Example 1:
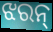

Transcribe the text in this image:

ଝରନ୍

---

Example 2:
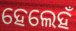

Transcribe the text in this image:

ହେଲେହଁ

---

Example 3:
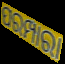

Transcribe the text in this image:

ପରମ୍ପାରା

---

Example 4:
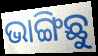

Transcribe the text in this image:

ଭାଙ୍ଗିଛୁ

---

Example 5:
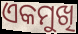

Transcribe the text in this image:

ଏକମୁଖି